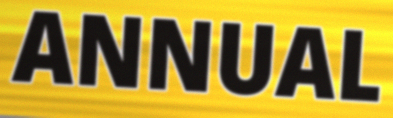
ANNUAL